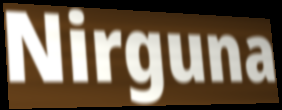
Nirguna